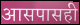
आसपासही